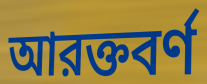
আরক্তবর্ণ